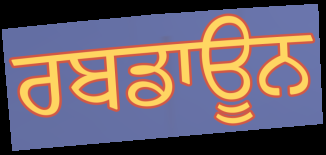
ਰਬਡਾਊਨ